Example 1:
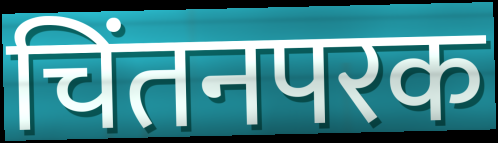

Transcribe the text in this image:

चिंतनपरक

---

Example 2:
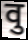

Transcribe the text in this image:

वु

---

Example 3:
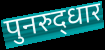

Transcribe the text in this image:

पुनरुद्धार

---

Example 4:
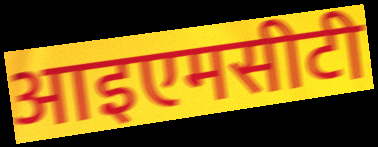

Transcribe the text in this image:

आइएमसीटी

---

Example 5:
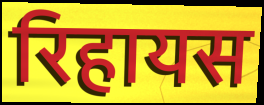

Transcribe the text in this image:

रिहायस